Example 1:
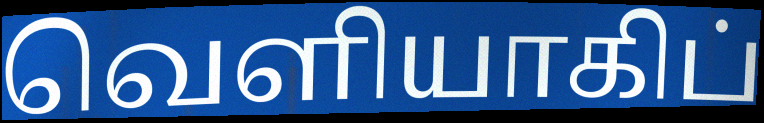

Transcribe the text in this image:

வெளியாகிப்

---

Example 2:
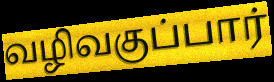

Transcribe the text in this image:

வழிவகுப்பார்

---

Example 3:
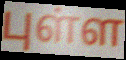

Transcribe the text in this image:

புள்ள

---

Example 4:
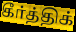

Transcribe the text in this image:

கீர்த்திக்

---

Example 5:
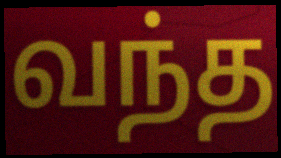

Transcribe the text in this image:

வந்த